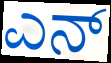
ಎನ್